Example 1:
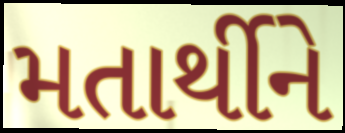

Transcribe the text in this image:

મતાર્થીને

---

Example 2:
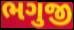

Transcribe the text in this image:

ભગુજી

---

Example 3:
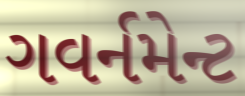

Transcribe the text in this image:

ગવર્નમેન્ટ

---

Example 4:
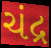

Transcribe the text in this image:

ચંદ્ર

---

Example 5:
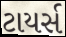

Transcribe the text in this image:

ટાયર્સ